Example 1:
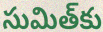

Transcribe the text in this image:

సుమిత్‌కు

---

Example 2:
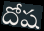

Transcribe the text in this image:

దోష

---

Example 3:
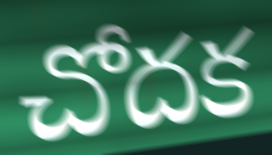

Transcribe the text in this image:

చోదక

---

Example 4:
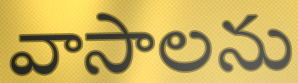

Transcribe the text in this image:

వాసాలను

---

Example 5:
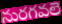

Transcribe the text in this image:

నురగవలె